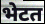
भेटत